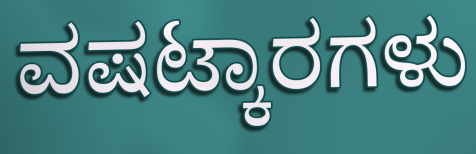
ವಷಟ್ಕಾರಗಳು